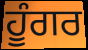
ਹੂੰਗਰ